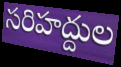
సరిహద్దుల